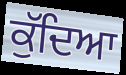
ਕੁੱਦਿਆ